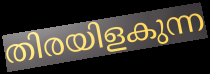
തിരയിളകുന്ന